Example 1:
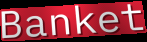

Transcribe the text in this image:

Banket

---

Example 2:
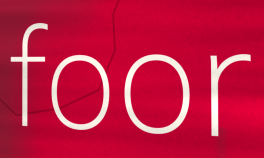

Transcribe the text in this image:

foor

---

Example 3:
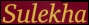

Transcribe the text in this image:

Sulekha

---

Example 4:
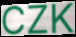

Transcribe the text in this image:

CZK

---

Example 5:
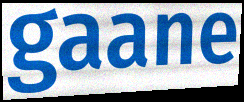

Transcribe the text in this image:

gaane